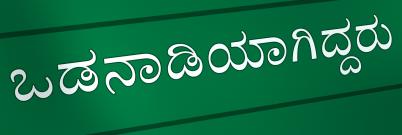
ಒಡನಾಡಿಯಾಗಿದ್ದರು